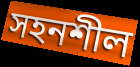
সহনশীল